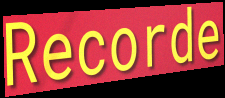
Recorde